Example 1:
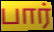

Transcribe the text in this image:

பார்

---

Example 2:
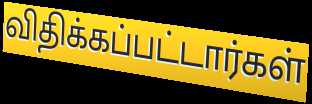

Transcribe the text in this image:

விதிக்கப்பட்டார்கள்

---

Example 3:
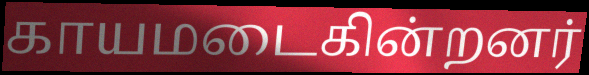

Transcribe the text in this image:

காயமடைகின்றனர்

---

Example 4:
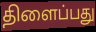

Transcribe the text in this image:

திளைப்பது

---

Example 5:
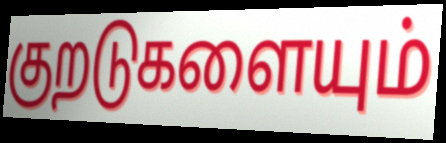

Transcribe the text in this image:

குறடுகளையும்